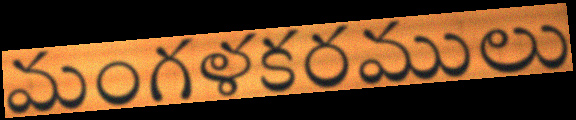
మంగళకరములు